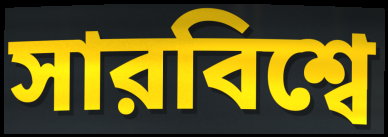
সারবিশ্বে